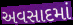
અવસાદમાં